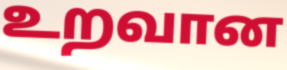
உறவான